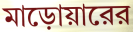
মাড়োয়ারের